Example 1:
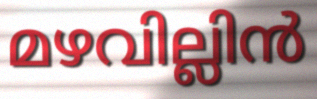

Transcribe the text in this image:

മഴവില്ലിൻ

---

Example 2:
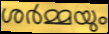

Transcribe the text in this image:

ശർമ്മയും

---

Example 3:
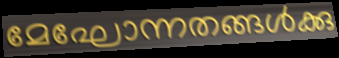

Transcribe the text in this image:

മേഘോന്നതങ്ങൾക്കു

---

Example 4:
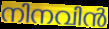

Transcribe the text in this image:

നിനവിൻ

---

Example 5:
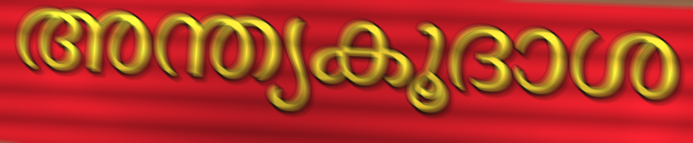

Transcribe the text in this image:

അന്ത്യകൂദാശ